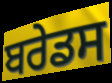
ਬਰੇਡਸ